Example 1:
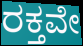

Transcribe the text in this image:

ರಕ್ತವೇ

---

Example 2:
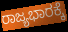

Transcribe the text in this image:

ರಾಜ್ಯಭಾರಕ್ಕೆ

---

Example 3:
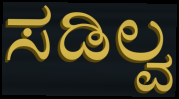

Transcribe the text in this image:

ಸಡಿಲ್ವ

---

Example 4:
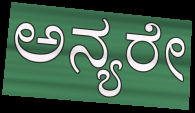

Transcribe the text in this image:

ಅನ್ಯರೇ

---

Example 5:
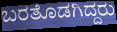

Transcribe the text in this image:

ಬರತೊಡಗಿದ್ದರು